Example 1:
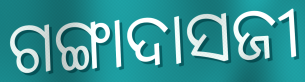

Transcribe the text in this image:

ଗଙ୍ଗାଦାସଜୀ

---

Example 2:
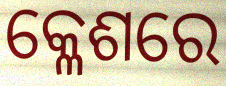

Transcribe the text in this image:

କ୍ଳେଶରେ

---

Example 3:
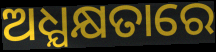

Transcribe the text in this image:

ଅଧ୍ଯକ୍ଷତାରେ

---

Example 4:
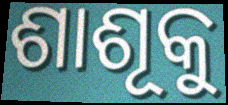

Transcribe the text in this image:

ଶାଶୂକୁ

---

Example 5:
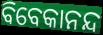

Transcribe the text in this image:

ବିବେକାନନ୍ଦ